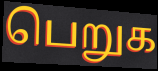
பெறுக